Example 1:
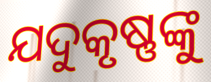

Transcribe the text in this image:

ଯଦୁକୃଷ୍ଣଙ୍କୁ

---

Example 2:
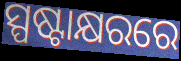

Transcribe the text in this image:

ସ୍ପଷ୍ଟାକ୍ଷରରେ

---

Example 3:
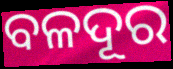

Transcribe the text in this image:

ବଳଦୂର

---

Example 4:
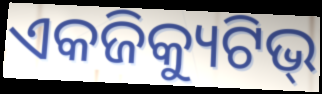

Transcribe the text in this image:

ଏକଜିକ୍ୟୁଟିଭ୍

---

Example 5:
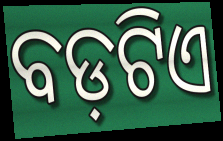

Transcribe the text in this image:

ବଡ଼ଟିଏ